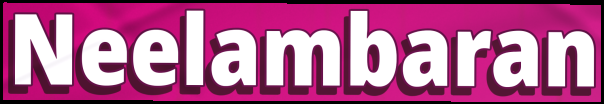
Neelambaran